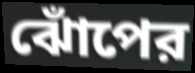
ঝোঁপের